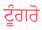
ਟੂੰਗਰੋ